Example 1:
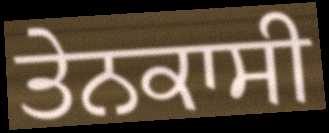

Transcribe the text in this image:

ਤੇਨਕਾਸੀ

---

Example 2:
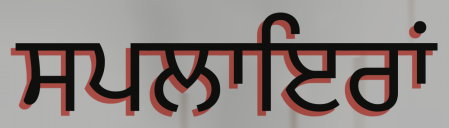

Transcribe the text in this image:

ਸਪਲਾਇਰਾਂ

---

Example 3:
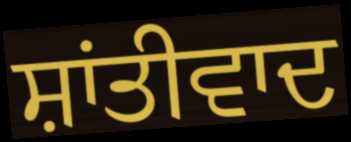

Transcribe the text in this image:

ਸ਼ਾਂਤੀਵਾਦ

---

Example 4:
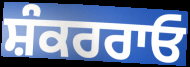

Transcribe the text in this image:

ਸ਼ੰਕਰਰਾਓ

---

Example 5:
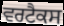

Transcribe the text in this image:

ਵਰਟੈਕਸ